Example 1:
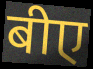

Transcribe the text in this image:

बीए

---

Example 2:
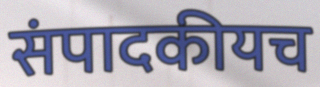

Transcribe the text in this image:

संपादकीयच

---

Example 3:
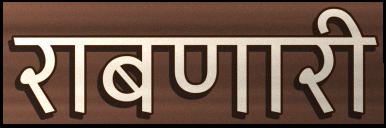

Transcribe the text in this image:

राबणारी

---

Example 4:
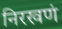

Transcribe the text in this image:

निरखणं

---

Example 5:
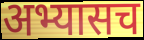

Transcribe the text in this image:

अभ्यासच